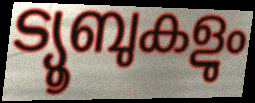
ട്യൂബുകളും